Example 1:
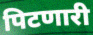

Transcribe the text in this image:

पिटणारी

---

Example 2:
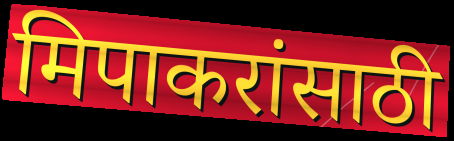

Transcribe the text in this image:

मिपाकरांसाठी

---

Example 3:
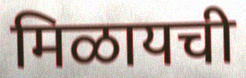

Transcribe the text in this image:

मिळायची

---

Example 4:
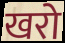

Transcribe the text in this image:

खरो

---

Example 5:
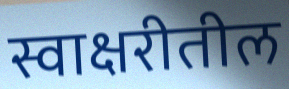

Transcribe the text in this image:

स्वाक्षरीतील